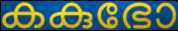
കകുഭോ